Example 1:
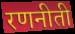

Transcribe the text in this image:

रणनीती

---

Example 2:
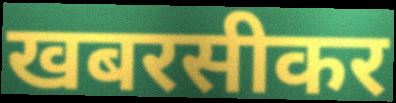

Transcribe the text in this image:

खबरसीकर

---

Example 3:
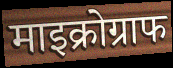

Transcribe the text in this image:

माइक्रोग्राफ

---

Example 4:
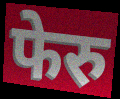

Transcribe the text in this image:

फेरु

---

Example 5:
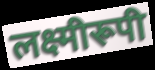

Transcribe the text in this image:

लक्ष्मीरूपी